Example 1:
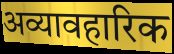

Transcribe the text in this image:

अव्यावहारिक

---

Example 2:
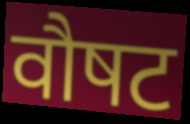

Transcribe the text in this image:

वौषट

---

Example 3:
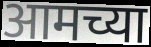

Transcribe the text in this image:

आमच्या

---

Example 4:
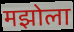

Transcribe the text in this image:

मझोला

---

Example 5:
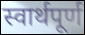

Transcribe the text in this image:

स्वार्थपूर्ण